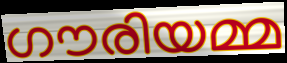
ഗൗരിയമ്മ